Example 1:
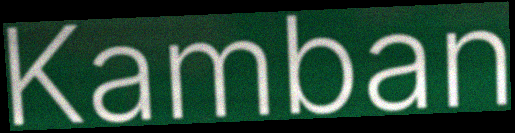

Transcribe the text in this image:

Kamban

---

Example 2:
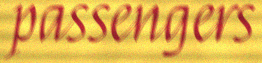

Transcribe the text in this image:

passengers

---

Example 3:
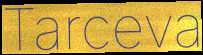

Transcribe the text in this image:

Tarceva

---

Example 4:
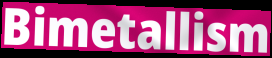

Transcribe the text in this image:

Bimetallism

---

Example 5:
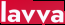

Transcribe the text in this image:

lavva